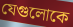
যেগুলোকে